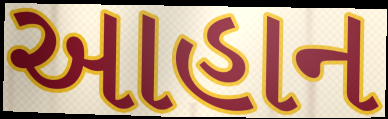
આહાન